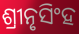
ଶ୍ରୀନୃସିଂହ